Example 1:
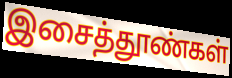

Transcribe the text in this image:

இசைத்தூண்கள்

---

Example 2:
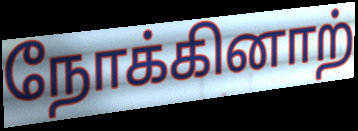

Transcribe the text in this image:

நோக்கினாற்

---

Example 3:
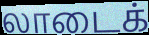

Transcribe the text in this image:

லாடைக்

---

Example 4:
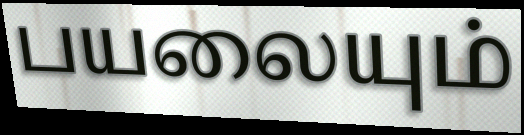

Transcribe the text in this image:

பயலையும்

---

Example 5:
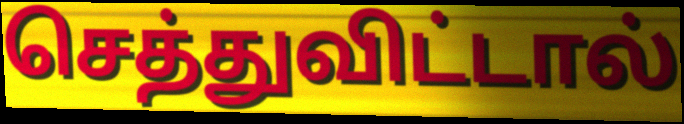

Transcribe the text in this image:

செத்துவிட்டால்